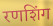
रणशिंग